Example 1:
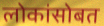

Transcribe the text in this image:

लोकांसोबत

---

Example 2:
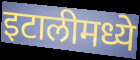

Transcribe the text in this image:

इटालीमध्ये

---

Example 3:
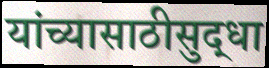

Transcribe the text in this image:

यांच्यासाठीसुद्धा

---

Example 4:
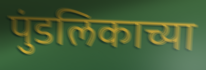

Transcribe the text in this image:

पुंडलिकाच्या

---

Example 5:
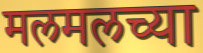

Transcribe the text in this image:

मलमलच्या